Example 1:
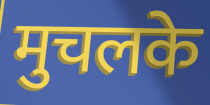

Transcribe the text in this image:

मुचलके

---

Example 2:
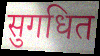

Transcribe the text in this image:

सुगधित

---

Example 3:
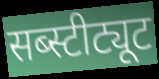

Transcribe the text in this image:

सब्स्टीट्यूट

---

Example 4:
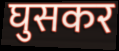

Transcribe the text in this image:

घुसकर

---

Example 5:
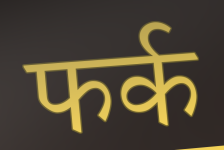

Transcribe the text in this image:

फर्क